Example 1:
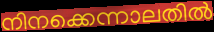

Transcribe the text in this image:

നിനക്കെന്നാലതിൽ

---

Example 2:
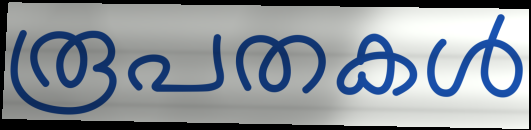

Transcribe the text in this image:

രൂപതകൾ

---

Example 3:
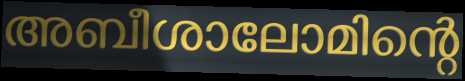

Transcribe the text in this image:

അബീശാലോമിന്റെ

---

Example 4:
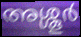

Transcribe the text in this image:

അശ്ശൂർ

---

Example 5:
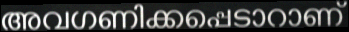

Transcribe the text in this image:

അവഗണിക്കപ്പെടാറാണ്